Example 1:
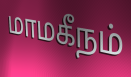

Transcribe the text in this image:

மாமகீநம்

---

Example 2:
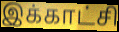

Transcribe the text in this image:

இக்காட்சி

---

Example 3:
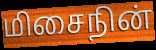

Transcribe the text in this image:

மிசைநின்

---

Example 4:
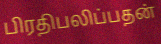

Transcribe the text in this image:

பிரதிபலிப்பதன்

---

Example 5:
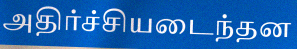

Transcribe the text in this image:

அதிர்ச்சியடைந்தன